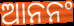
ଆନନଂ